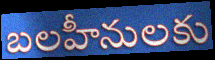
బలహీనులకు